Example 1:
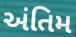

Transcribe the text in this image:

અંતિમ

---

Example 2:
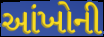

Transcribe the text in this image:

આંખોની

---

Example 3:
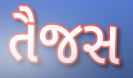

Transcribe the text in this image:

તૈજસ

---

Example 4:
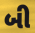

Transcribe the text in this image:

બી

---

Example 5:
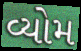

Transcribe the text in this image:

વ્યોમ